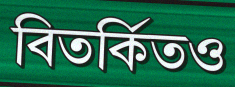
বিতর্কিতও